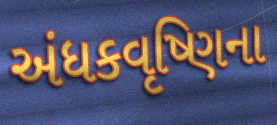
અંધકવૃષ્ણિના